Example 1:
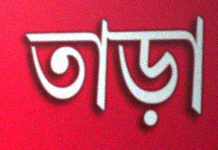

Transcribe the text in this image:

তাড়া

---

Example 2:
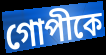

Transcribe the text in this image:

গোপীকে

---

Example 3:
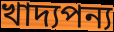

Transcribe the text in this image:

খাদ্যপন্য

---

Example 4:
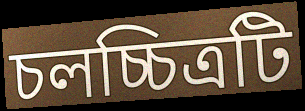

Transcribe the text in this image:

চলচ্চিত্রটি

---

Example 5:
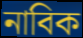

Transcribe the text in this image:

নাবিক